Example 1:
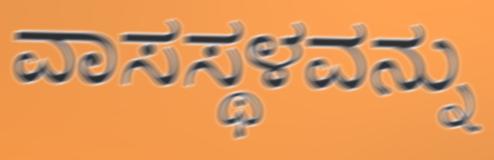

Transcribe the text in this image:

ವಾಸಸ್ಥಳವನ್ನು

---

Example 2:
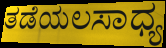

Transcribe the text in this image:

ತಡೆಯಲಸಾಧ್ಯ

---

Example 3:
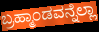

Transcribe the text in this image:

ಬ್ರಹ್ಮಾಂಡವನ್ನೆಲ್ಲಾ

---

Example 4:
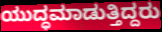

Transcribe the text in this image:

ಯುದ್ಧಮಾಡುತ್ತಿದ್ದರು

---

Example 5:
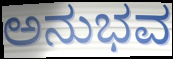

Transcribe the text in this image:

ಅನುಭವ